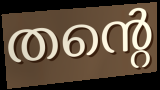
തന്റെ